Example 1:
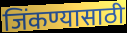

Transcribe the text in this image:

जिंकण्यासाठी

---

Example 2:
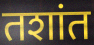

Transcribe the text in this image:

तशांत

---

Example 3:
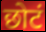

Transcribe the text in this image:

छोटं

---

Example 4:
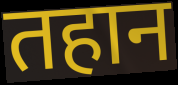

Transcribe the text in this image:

तहान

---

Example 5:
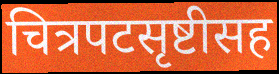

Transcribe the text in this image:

चित्रपटसृष्टीसह